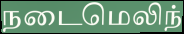
நடைமெலிந்